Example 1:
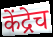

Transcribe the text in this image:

केंद्रेच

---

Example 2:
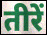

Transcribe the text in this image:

तीरें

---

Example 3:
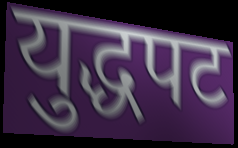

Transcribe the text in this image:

युद्धपट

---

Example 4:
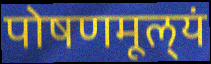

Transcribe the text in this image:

पोषणमूल्यं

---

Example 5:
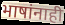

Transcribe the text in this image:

भाषांनाही